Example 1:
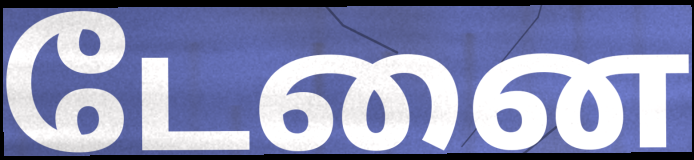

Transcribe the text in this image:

டேனை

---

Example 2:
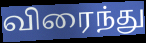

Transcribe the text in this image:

விரைந்து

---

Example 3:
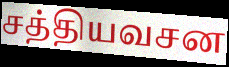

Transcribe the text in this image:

சத்தியவசன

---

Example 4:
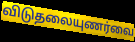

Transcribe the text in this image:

விடுதலையுணர்வை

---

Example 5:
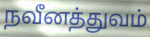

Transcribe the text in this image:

நவீனத்துவம்